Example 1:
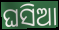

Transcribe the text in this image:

ଘସିଆ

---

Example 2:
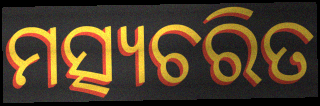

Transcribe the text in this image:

ମତ୍ସ୍ୟଚରିତ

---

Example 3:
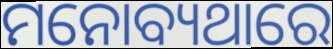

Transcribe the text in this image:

ମନୋବ୍ୟଥାରେ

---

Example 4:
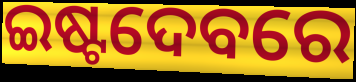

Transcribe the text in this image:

ଇଷ୍ଟଦେବରେ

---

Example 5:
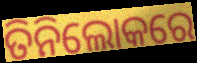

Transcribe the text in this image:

ତିନିଲୋକରେ